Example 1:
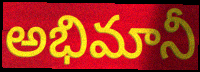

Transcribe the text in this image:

అభిమానీ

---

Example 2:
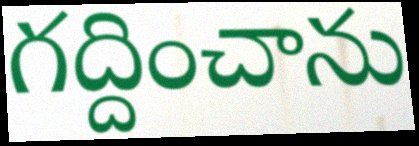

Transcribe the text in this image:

గద్దించాను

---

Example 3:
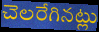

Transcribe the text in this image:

చెలరేగినట్లు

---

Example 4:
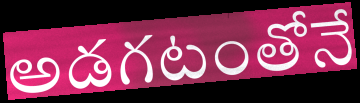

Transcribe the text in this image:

అడగటంతోనే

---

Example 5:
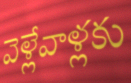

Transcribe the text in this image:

వెళ్లేవాళ్లకు